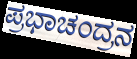
ಪ್ರಭಾಚಂದ್ರನ